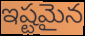
ఇష్టమైన